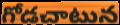
గోడచాటున